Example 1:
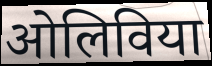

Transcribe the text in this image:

ओलिविया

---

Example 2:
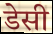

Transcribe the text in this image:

डेसी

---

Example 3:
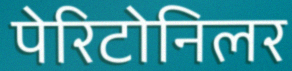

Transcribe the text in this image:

पेरिटोनिलर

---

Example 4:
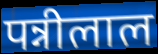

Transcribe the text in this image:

पन्नीलाल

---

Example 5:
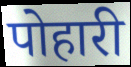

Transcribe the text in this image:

पोहारी